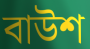
বাউশ